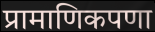
प्रामाणिकपणा